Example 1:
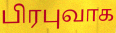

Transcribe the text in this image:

பிரபுவாக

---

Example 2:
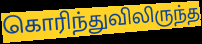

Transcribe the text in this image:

கொரிந்துவிலிருந்த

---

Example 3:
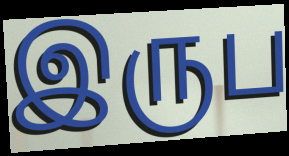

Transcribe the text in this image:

இருப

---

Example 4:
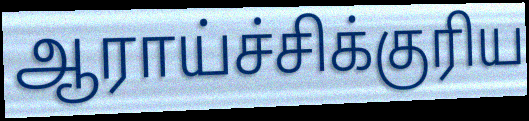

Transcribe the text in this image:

ஆராய்ச்சிக்குரிய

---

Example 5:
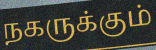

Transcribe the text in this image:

நகருக்கும்